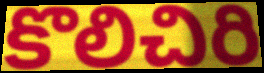
కొలిచిరి